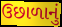
ઉછાળાનું